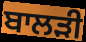
ਬਾਲੜੀ